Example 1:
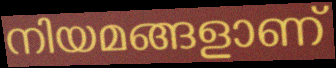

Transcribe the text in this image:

നിയമങ്ങളാണ്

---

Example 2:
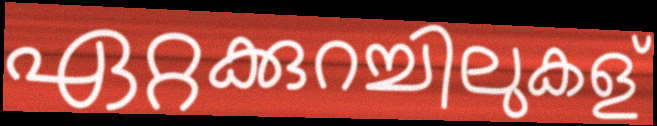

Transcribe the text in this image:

ഏറ്റക്കുറച്ചിലുകള്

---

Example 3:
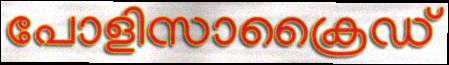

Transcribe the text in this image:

പോളിസാക്രൈഡ്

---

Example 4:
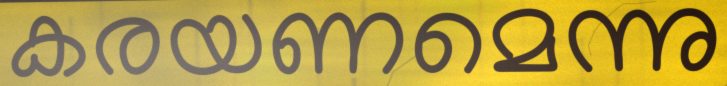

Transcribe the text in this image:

കരയണമെന്നു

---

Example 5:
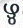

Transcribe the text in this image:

ഴു